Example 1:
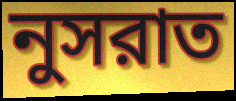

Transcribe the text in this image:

নুসরাত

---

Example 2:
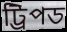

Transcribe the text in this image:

ট্রিপড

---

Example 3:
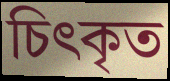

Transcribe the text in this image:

চিৎকৃত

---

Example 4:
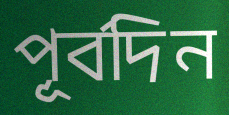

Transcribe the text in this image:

পূর্বদিন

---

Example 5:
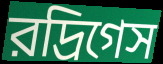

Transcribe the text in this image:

রদ্রিগেস